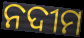
ନଦୀମ